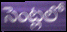
సెంట్లలో